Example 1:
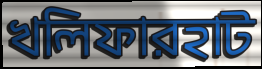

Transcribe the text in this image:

খলিফারহাট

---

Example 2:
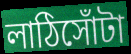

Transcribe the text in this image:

লাঠিসোঁটা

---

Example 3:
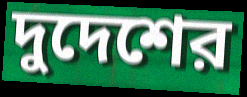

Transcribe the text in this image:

দুদেশের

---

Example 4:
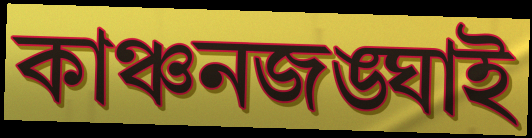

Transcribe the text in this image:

কাঞ্চনজঙ্ঘাই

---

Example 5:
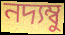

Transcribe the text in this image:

নদ্যম্বু